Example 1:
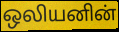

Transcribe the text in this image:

ஒலியனின்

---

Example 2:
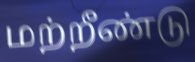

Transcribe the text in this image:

மற்றீண்டு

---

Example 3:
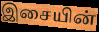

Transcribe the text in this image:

இசையின்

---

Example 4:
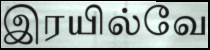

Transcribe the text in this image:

இரயில்வே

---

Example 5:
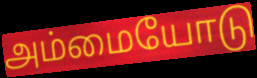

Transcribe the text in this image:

அம்மையோடு